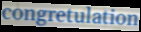
congretulation